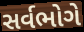
સર્વભોગે